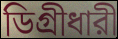
ডিগ্রীধারী